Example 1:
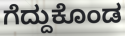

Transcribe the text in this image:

ಗೆದ್ದುಕೊಂಡ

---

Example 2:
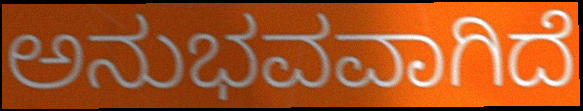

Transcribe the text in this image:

ಅನುಭವವಾಗಿದೆ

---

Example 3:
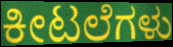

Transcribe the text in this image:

ಕೀಟಲೆಗಳು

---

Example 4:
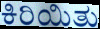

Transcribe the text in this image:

ಕಿರಿಯಿತು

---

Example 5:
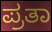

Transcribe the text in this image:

ಪ್ರತಾ